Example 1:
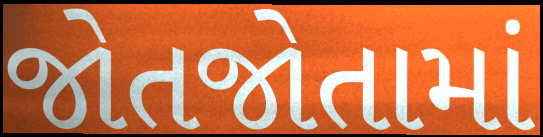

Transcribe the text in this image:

જોતજોતામાં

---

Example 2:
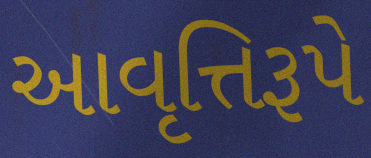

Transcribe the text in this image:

આવૃત્તિરૂપે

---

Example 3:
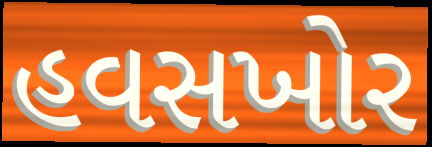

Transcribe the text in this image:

હવસખોર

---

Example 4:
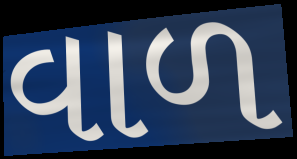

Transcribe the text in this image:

વાળ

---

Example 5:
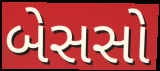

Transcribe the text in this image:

બેસસો